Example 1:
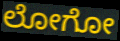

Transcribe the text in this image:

ಲೋಗೋ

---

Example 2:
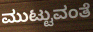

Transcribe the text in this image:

ಮುಟ್ಟುವಂತೆ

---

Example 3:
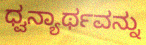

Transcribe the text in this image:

ಧ್ವನ್ಯಾರ್ಥವನ್ನು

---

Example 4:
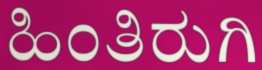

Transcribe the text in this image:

ಹಿಂತಿರುಗಿ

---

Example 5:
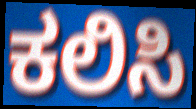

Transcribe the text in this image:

ಕಲಿಸಿ